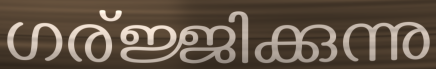
ഗര്ജ്ജിക്കുന്നു